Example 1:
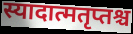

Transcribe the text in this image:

स्यादात्मतृप्तश्च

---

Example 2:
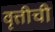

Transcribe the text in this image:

वृत्तीची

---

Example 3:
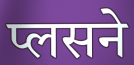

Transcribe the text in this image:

प्लसने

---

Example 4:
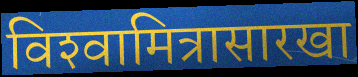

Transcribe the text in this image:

विश्वामित्रासारखा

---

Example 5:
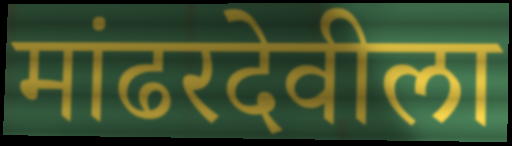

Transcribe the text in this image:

मांढरदेवीला